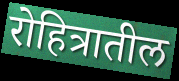
रोहित्रातील